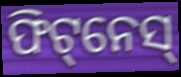
ଫିଟ୍‌ନେସ୍